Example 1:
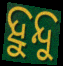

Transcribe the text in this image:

ହୁନ୍ଦୁ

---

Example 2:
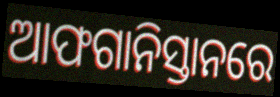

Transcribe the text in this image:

ଆଫଗାନିସ୍ତାନରେ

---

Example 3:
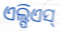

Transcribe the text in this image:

ଏଲ୍ପିଏସ୍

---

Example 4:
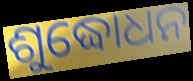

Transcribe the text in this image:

ଶୁଦ୍ଧୋଧନ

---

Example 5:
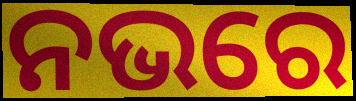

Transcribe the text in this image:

ନଭରେ